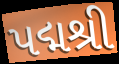
પદ્મશ્રી